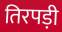
तिरपड़ी